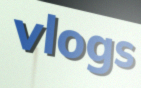
vlogs